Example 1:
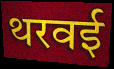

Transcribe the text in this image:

थरवई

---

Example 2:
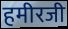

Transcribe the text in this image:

हमीरजी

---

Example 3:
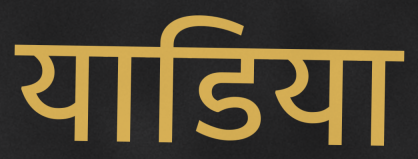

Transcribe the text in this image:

याडिया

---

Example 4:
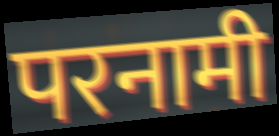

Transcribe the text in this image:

परनामी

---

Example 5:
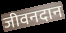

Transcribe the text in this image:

जीवनदान